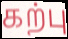
கற்பு